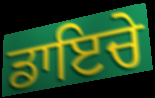
ਡਾਇਚੇ